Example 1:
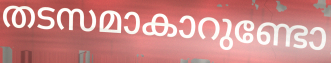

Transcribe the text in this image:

തടസമാകാറുണ്ടോ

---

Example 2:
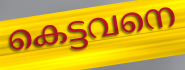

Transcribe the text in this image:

കെട്ടവനെ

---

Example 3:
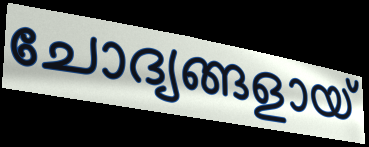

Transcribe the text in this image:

ചോദ്യങ്ങളായ്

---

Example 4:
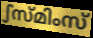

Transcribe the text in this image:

ഽസ്മിംസ്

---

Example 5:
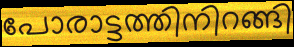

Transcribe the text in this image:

പോരാട്ടത്തിനിറങ്ങി